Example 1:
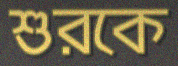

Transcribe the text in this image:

শুরকে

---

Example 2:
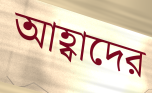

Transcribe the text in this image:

আহ্বাদের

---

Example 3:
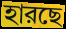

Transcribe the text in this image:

হারছে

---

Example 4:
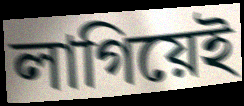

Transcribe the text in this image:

লাগিয়েই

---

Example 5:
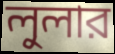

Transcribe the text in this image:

লুলার